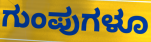
ಗುಂಪುಗಳೂ